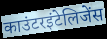
काउंटरइंटेलिजेंस